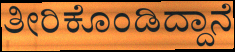
ತೀರಿಕೊಂಡಿದ್ದಾನೆ